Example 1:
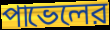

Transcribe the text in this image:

পাভেলের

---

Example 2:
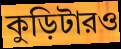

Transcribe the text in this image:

কুড়িটারও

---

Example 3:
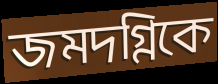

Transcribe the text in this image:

জমদগ্নিকে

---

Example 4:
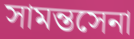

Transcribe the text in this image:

সামন্তসেনা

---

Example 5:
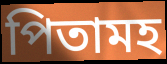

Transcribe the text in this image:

পিতামহ